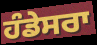
ਹੰਡੇਸਰਾ